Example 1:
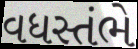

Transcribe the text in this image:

વધસ્તંભે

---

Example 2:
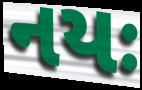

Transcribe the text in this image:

નયઃ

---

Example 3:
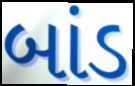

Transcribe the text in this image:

બાંડ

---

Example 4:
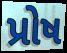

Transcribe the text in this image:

પ્રોષ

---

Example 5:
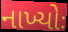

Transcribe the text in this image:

નાખ્યોઃ